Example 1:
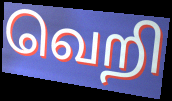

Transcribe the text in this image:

வெறி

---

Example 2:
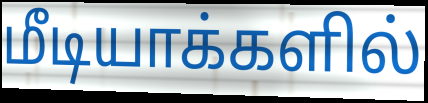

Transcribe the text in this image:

மீடியாக்களில்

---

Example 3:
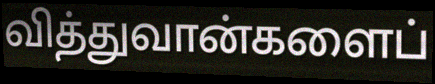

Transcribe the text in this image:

வித்துவான்களைப்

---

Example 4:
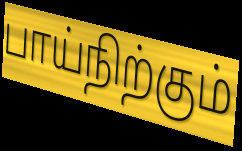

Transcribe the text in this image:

பாய்நிற்கும்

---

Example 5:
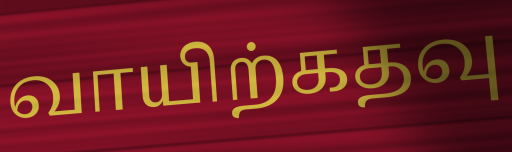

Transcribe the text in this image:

வாயிற்கதவு